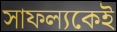
সাফল্যকেই